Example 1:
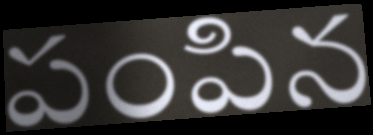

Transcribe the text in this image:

పంపిన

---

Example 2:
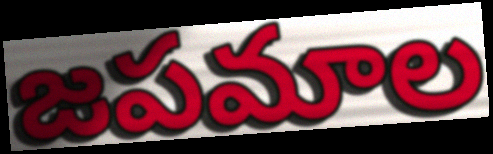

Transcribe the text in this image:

జపమాల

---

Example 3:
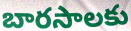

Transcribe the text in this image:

బారసాలకు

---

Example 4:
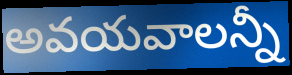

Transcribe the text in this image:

అవయవాలన్నీ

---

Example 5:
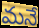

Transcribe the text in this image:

మనే